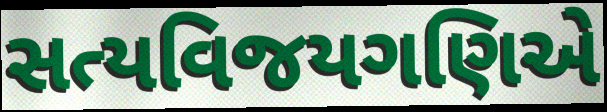
સત્યવિજયગણિએ